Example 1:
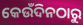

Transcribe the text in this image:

କେଉଁଦିନଠାରୁ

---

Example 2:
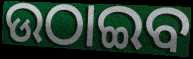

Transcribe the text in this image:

ଉଠାଇବ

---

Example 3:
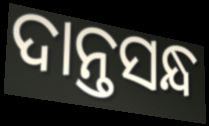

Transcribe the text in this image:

ଦାନ୍ତସନ୍ଧ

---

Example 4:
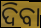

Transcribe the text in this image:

ଦିବା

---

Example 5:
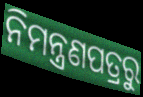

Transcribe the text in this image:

ନିମନ୍ତ୍ରଣପତ୍ରରୁ